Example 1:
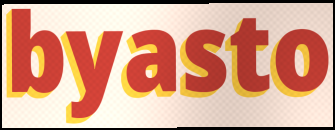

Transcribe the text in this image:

byasto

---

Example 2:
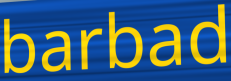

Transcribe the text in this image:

barbad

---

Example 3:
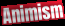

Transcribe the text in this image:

Animism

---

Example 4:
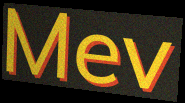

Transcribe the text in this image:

Mev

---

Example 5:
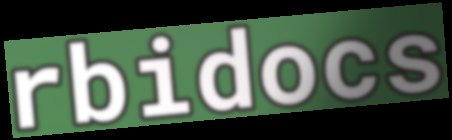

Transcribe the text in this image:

rbidocs